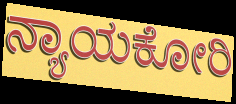
ನ್ಯಾಯಕೋರಿ